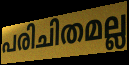
പരിചിതമല്ല